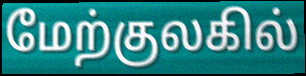
மேற்குலகில்